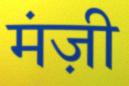
मंज़ी